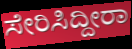
ಸೇರಿಸಿದ್ದೀರಾ